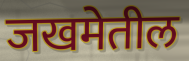
जखमेतील